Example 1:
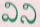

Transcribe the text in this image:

విని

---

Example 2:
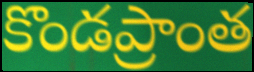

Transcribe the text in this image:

కొండప్రాంత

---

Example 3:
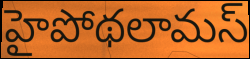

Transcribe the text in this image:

హైపోథలామస్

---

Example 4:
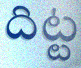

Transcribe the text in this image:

దిట్ట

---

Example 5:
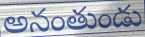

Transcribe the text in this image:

అనంతుండు